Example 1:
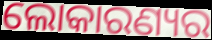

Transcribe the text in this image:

ଲୋକାରଣ୍ୟର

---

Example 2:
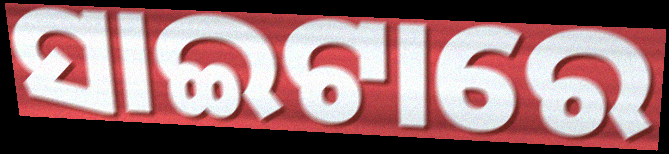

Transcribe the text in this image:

ସାଇଟାରେ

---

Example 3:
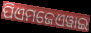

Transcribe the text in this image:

ପିଏମଜେଏୱାଇ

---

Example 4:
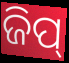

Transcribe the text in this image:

ଜିପ୍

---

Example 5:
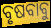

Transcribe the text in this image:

ବୃଷବାବୁ